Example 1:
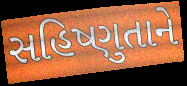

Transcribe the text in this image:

સહિષ્ણુતાને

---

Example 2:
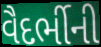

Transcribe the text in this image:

વૈદર્ભીની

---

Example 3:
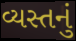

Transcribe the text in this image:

વ્યસ્તનું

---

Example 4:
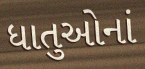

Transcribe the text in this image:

ધાતુઓનાં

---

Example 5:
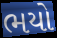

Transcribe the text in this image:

ભયો